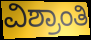
ವಿಶ್ರಾಂತಿ